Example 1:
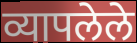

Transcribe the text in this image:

व्यापलेले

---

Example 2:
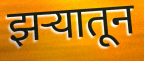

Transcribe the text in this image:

झऱ्यातून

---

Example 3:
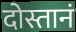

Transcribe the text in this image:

दोस्तानं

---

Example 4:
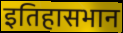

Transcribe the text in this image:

इतिहासभान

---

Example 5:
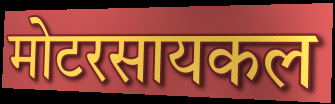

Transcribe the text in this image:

मोटरसायकल